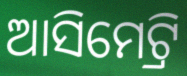
ଆସିମେଟ୍ରି